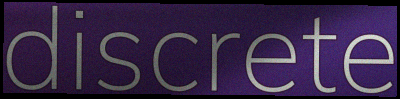
discrete